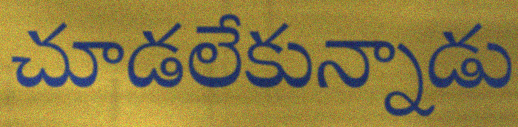
చూడలేకున్నాడు